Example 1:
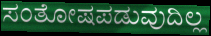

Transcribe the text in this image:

ಸಂತೋಷಪಡುವುದಿಲ್ಲ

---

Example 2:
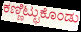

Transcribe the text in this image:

ಕಣ್ಣಿಟ್ಟುಕೊಂಡು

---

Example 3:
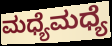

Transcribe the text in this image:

ಮಧ್ಯೆಮಧ್ಯೆ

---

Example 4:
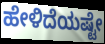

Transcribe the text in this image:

ಹೇಳಿದೆಯಷ್ಟೇ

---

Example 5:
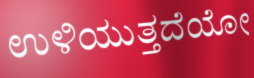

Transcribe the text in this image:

ಉಳಿಯುತ್ತದೆಯೋ